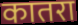
कातरा